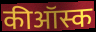
कीऑस्क